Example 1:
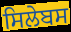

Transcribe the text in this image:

ਸਿਲੇਬਸ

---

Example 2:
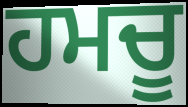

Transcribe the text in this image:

ਹਮਚੂ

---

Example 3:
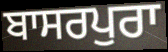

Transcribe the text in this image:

ਬਾਸਰਪੁਰਾ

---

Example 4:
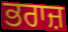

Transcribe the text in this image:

ਭਰਾਜ਼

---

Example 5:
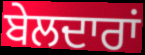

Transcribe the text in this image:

ਬੇਲਦਾਰਾਂ